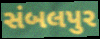
સંબલપુર